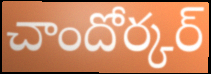
చాందోర్కర్